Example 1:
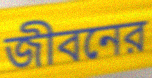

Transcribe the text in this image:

জীবনের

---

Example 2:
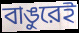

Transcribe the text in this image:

বাঙুরেই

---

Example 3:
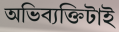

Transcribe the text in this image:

অভিব্যক্তিটাই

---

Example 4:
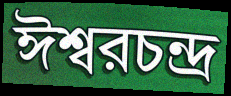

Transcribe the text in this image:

ঈশ্বরচন্দ্র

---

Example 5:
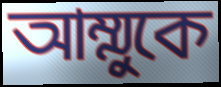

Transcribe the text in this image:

আম্মুকে